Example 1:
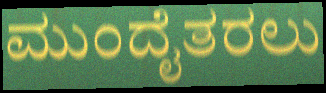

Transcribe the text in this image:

ಮುಂದೈತರಲು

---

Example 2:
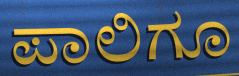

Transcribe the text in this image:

ಪಾಲಿಗೂ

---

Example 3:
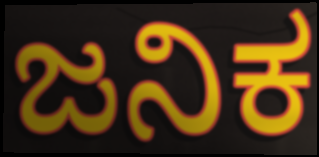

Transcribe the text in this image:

ಜನಿಕ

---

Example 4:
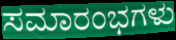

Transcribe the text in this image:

ಸಮಾರಂಭಗಳು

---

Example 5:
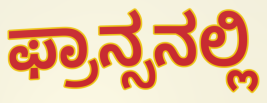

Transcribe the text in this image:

ಫ್ರಾನ್ಸನಲ್ಲಿ